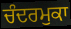
ਚੰਦਰਮੁਕਾ